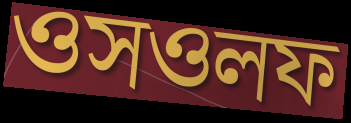
ওসওলফ